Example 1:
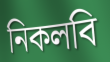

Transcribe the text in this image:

নিকলবি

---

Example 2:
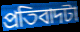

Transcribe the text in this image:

প্রতিবাদটা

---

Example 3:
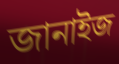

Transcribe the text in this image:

জানাইজ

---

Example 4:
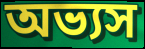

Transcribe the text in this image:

অভ্যস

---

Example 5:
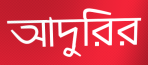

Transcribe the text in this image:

আদুরির